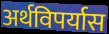
अर्थविपर्यास